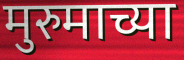
मुरुमाच्या